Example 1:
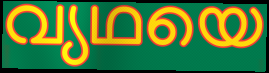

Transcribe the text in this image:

വ്യഥയെ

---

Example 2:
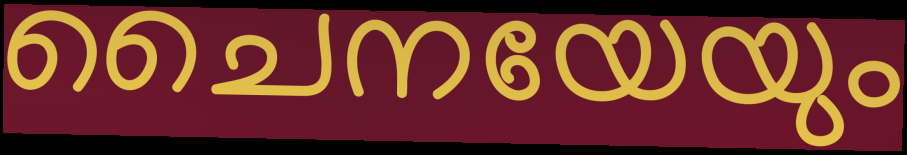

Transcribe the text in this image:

ചൈനയേയും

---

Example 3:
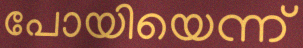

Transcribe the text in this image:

പോയിയെന്ന്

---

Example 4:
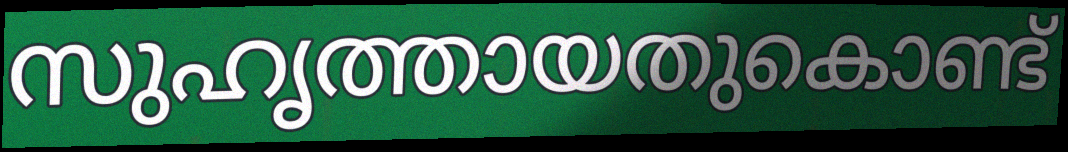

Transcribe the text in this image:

സുഹൃത്തായതുകൊണ്ട്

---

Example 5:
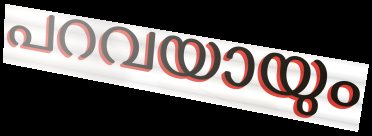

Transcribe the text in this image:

പറവയായും